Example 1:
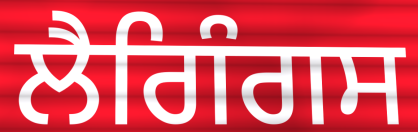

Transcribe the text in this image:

ਲੈਗਿੰਗਸ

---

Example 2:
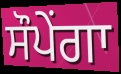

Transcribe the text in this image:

ਸੌਪੇਂਗਾ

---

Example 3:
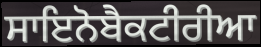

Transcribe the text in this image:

ਸਾਇਨੋਬੈਕਟੀਰੀਆ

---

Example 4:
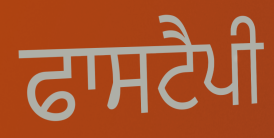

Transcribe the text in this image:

ਫਾਸਟੈਪੀ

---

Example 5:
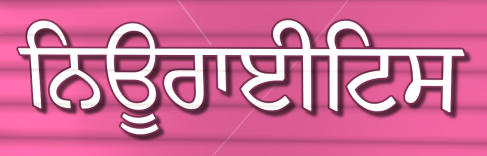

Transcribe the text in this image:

ਨਿਊਰਾਈਟਿਸ